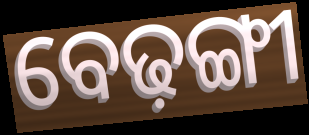
ବେଢ଼ଙ୍ଗୀ